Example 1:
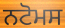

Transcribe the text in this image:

ਨਟੋਮਸ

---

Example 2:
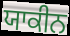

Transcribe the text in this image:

ਯਾਕੀਨ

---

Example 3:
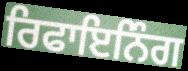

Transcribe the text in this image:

ਰਿਫਾਇਨਿੰਗ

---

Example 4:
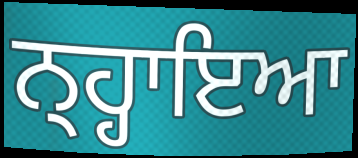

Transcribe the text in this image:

ਨ੍ਹ੍ਹਾਇਆ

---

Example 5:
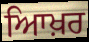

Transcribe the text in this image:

ਆਿਖ਼ਰ